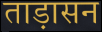
ताड़ासन